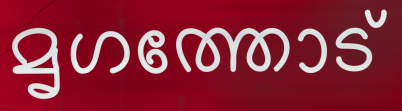
മൃഗത്തോട്